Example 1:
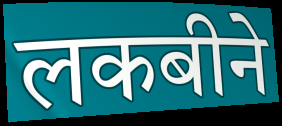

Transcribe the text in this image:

लकबीने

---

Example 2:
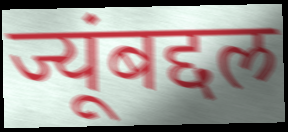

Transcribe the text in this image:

ज्यूंबद्दल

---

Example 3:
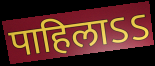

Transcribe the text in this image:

पाहिलाऽऽ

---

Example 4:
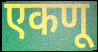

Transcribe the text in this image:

एकणू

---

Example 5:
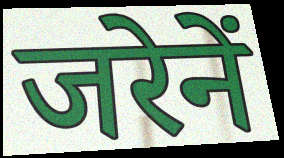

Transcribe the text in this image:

जरेनें